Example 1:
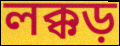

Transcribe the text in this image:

লক্কড়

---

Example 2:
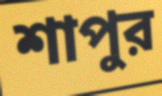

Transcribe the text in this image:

শাপুর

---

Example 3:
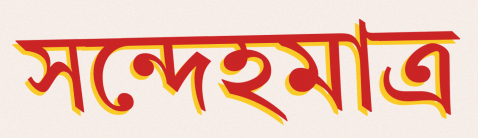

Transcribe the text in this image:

সন্দেহমাত্র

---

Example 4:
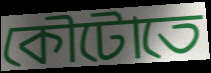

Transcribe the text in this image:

কৌটোতে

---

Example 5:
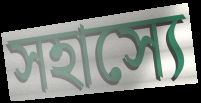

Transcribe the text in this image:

সহাস্যে